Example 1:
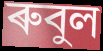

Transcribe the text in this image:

ৰুবুল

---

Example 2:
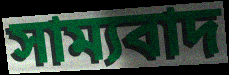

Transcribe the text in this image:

সাম্যবাদ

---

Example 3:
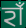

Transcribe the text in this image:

হাঁ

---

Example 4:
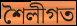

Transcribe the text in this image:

শৈলীগত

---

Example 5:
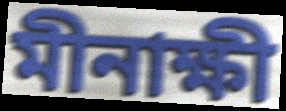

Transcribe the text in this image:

মীনাক্ষী